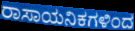
ರಾಸಾಯನಿಕಗಳಿಂದ